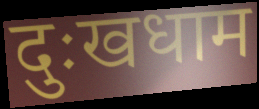
दुःखधाम